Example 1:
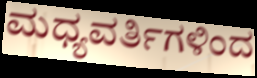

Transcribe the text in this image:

ಮಧ್ಯವರ್ತಿಗಳಿಂದ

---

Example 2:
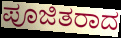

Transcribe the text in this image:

ಪೂಜಿತರಾದ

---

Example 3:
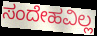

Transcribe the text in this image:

ಸಂದೇಹವಿಲ್ಲ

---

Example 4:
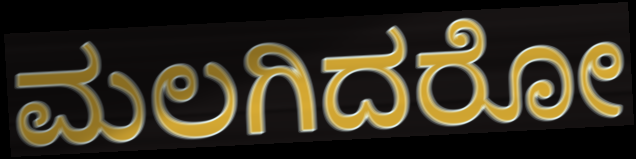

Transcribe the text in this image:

ಮಲಗಿದರೋ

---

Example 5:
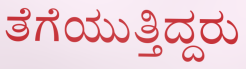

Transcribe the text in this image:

ತೆಗೆಯುತ್ತಿದ್ದರು